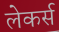
लेकर्स